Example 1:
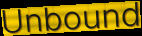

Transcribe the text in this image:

Unbound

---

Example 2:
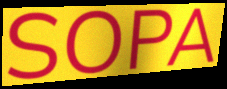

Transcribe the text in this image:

SOPA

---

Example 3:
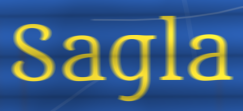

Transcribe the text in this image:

Sagla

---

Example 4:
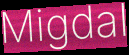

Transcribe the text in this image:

Migdal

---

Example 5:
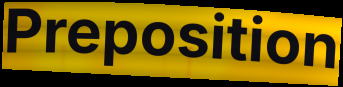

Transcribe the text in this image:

Preposition